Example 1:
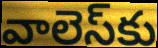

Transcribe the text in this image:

వాలెస్‌కు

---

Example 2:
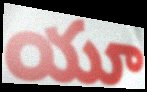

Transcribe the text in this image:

యూ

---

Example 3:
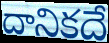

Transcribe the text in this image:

దానికదే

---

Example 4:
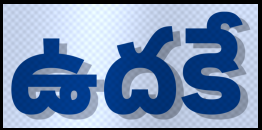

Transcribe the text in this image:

ఉదకే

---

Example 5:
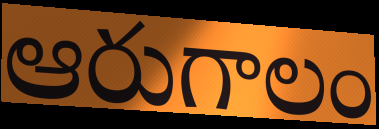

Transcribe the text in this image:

ఆరుగాలం